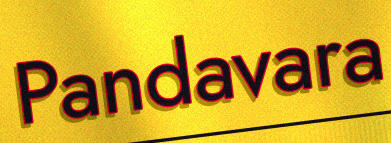
Pandavara